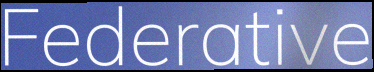
Federative